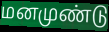
மனமுண்டு